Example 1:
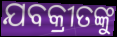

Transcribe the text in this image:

ଯବକ୍ରୀତଙ୍କୁ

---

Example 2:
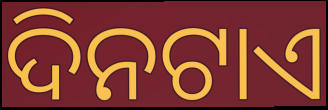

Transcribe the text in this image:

ଦିନଟାଏ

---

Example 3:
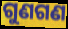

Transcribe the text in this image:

ଗୁଣଗଣ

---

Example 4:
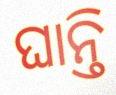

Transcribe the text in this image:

ଘାନ୍ତି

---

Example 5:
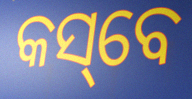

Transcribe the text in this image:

କସ୍‌ବେ